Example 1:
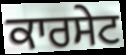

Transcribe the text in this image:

ਕਾਰਸੇਟ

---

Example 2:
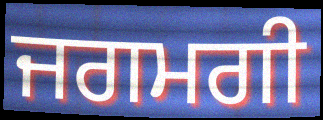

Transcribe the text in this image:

ਜਗਮਗੀ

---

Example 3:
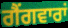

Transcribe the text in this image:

ਗੈਂਗਵਾਰਾਂ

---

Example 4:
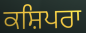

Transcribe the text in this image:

ਕਸ਼ਿਪਰਾ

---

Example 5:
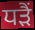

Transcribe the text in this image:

ਧੜੈਂ